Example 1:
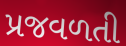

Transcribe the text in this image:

પ્રજવળતી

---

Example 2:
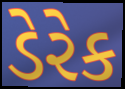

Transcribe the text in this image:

ડેરેક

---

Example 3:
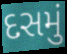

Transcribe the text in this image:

દસમું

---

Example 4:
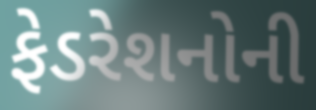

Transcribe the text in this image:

ફેડરેશનોની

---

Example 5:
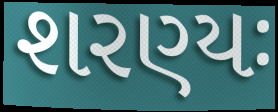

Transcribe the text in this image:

શરણ્યઃ